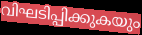
വിഘടിപ്പിക്കുകയും